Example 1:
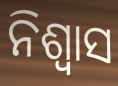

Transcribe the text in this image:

ନିଶ୍ଵାସ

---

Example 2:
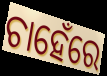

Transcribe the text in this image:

ଚାହେଁରେ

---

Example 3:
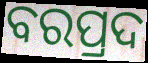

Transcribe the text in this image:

ବରପ୍ରଦ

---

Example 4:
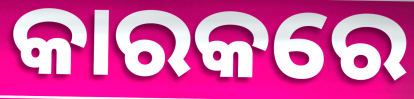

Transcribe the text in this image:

କାରକରେ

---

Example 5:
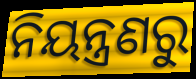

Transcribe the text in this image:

ନିୟନ୍ତ୍ରଣରୁ